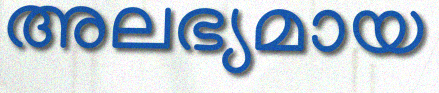
അലഭ്യമായ